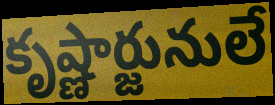
కృష్ణార్జునులే